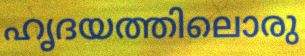
ഹൃദയത്തിലൊരു